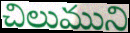
చిలుముని